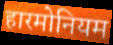
हारमोनियम